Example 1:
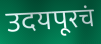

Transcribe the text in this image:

उदयपूरचं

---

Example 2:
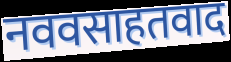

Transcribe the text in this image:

नववसाहतवाद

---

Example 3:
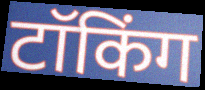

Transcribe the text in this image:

टॉकिंग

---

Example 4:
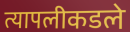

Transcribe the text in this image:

त्यापलीकडले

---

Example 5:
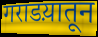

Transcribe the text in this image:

गराडय़ातून